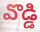
వొడ్డి